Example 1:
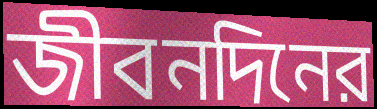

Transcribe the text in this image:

জীবনদিনের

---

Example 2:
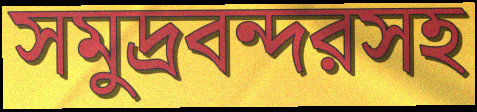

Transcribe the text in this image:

সমুদ্রবন্দরসহ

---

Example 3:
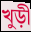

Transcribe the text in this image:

খুড়ী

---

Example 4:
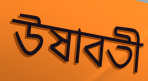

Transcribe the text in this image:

উষাবতী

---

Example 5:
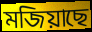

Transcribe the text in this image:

মজিয়াছে